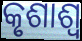
କୃଶାଶ୍ୱ